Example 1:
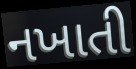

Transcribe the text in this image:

નખાતી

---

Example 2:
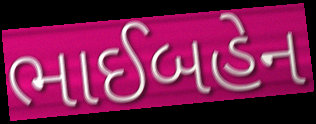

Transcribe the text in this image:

ભાઈબહેન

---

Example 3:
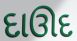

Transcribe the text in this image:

દાઊદ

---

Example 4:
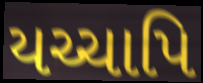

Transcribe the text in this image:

યચ્ચાપિ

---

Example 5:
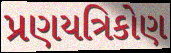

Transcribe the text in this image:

પ્રણયત્રિકોણ